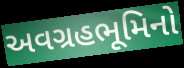
અવગ્રહભૂમિનો